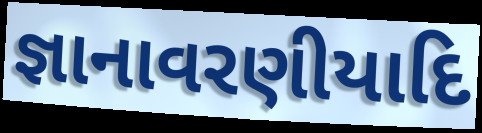
જ્ઞાનાવરણીયાદિ